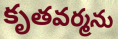
కృతవర్మను